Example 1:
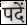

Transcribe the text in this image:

पदें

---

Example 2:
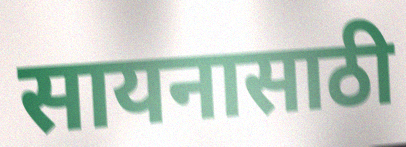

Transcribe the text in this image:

सायनासाठी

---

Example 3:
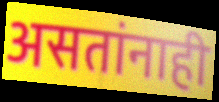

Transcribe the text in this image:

असतांनाही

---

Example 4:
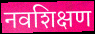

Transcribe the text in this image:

नवशिक्षण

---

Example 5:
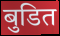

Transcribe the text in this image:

बुडित